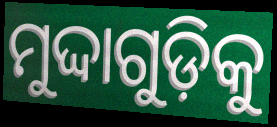
ମୁଦ୍ଦାଗୁଡ଼ିକୁ